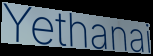
Yethanai